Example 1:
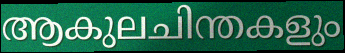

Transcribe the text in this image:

ആകുലചിന്തകളും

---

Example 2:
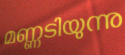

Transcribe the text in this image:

മണ്ണടിയുന്നു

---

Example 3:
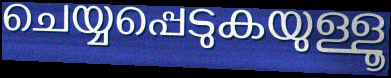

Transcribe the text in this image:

ചെയ്യപ്പെടുകയുള്ളൂ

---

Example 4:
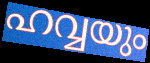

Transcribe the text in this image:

ഹവ്വയും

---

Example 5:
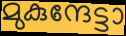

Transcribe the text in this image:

മുകുന്ദേട്ടാ